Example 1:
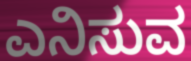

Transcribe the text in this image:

ಎನಿಸುವ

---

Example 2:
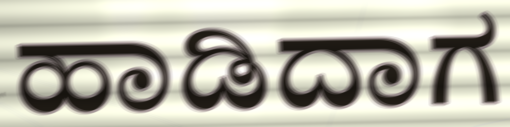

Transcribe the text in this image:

ಹಾಡಿದಾಗ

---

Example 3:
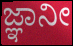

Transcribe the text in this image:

ಜ್ಞಾನೀ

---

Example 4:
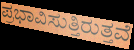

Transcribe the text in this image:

ಪ್ರಭಾವಿಸುತ್ತಿರುತ್ತವೆ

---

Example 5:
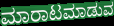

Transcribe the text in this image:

ಮಾರಾಟಮಾಡುವ